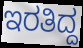
ಇರತಿದ್ದ